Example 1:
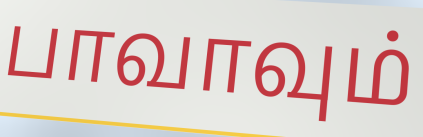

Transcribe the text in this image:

பாவாவும்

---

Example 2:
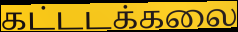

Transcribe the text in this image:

கட்டடக்கலை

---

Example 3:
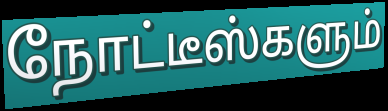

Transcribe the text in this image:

நோட்டீஸ்களும்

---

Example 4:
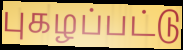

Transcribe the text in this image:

புகழப்பட்டு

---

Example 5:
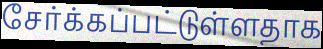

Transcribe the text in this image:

சேர்க்கப்பட்டுள்ளதாக